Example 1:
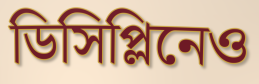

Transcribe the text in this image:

ডিসিপ্লিনেও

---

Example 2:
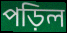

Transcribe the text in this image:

পড়িল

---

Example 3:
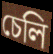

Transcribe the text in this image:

চেলি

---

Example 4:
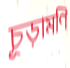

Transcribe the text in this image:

চূড়ামণি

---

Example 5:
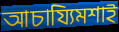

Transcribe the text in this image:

আচায্যিমশাই